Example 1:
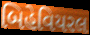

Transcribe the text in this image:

બિહેવિયરલ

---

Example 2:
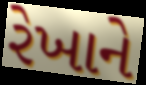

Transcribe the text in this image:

રેખાને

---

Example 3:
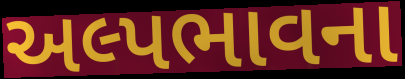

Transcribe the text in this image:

અલ્પભાવના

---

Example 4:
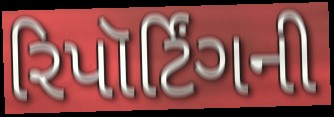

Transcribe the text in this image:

રિપૉર્ટિંગની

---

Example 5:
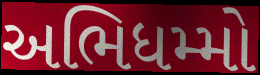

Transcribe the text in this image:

અભિધમ્મો